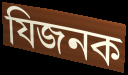
যিজনক